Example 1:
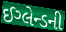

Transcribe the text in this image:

ઈગ્લેન્ડની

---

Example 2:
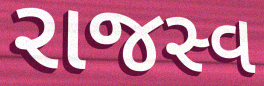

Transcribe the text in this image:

રાજસ્વ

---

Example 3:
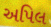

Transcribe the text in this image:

અપિલ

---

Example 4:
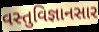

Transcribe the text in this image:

વસ્તુવિજ્ઞાનસાર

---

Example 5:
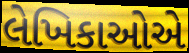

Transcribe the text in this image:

લેખિકાઓએ